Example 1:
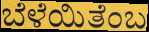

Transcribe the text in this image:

ಬೆಳೆಯಿತೆಂಬ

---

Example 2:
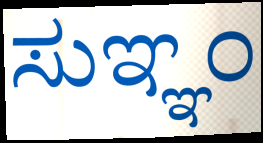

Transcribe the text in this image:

ಸುಞ್ಞಂ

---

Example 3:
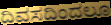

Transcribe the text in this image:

ದಿವಸದಿಂದಲೂ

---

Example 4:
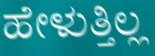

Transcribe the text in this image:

ಹೇಳುತ್ತಿಲ್ಲ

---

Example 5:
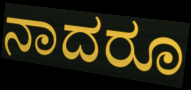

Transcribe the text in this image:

ನಾದರೂ